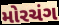
મોરચંગ